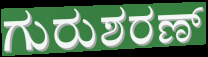
ಗುರುಶರಣ್